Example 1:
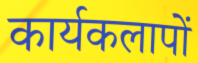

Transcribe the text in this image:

कार्यकलापों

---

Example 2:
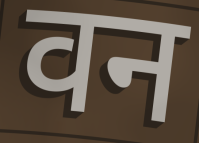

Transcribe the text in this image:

वन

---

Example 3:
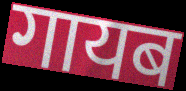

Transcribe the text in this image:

गायब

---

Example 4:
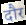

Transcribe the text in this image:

दौर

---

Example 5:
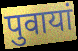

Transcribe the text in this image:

पुवायां